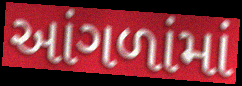
આંગળાંમાં